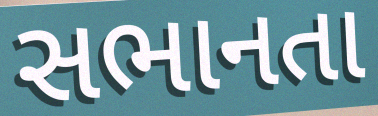
સભાનતા